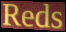
Reds